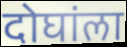
दोघांला